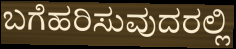
ಬಗೆಹರಿಸುವುದರಲ್ಲಿ